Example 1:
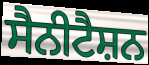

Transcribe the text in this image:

ਸੈਨੀਟੈਸ਼ਨ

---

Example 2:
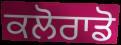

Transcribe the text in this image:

ਕਲੋਰਾਡੋ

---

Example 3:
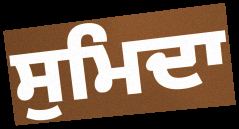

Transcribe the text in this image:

ਸੁਮਿਦਾ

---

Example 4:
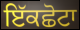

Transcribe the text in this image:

ਇੱਕਛੋਟਾ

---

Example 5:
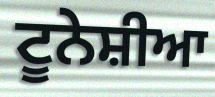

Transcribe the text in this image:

ਟੂਨੇਸ਼ੀਆ